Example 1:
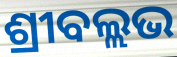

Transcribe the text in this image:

ଶ୍ରୀବଲ୍ଲଭ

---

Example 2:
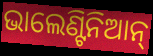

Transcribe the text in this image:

ଭାଲେଣ୍ଟିନିଆନ୍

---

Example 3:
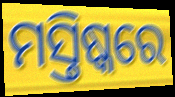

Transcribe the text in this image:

ମସ୍ତିଷ୍କରେ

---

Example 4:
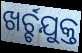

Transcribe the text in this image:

ଖର୍ଚ୍ଚଯୁକ୍ତ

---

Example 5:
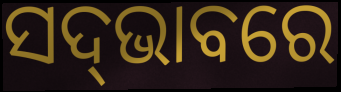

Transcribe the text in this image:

ସଦ୍‌ଭାବରେ